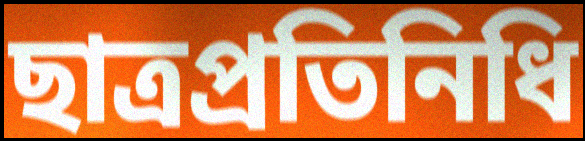
ছাত্রপ্রতিনিধি